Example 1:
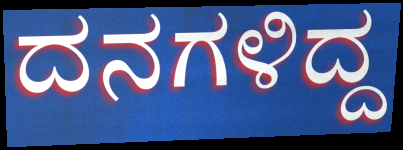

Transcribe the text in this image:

ದನಗಳಿದ್ದ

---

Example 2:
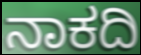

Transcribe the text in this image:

ನಾಕದಿ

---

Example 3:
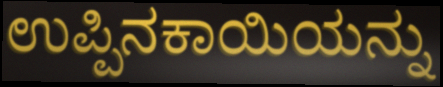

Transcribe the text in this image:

ಉಪ್ಪಿನಕಾಯಿಯನ್ನು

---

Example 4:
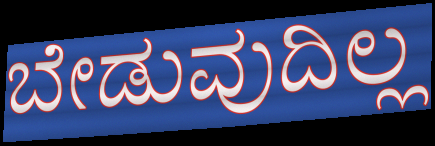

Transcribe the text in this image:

ಬೇಡುವುದಿಲ್ಲ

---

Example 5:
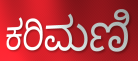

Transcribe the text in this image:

ಕರಿಮಣಿ